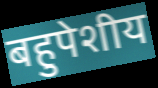
बहुपेशीय